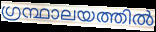
ഗ്രന്ഥാലയത്തിൽ